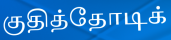
குதித்தோடிக்